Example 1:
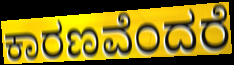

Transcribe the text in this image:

ಕಾರಣವೆಂದರೆ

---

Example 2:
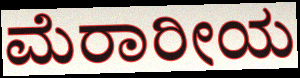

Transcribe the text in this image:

ಮೆರಾರೀಯ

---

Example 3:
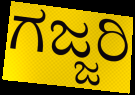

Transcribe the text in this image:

ಗಜ್ಜರಿ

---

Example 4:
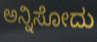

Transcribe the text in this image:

ಅನ್ನಿಸೋದು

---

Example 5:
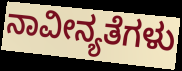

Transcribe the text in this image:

ನಾವೀನ್ಯತೆಗಳು